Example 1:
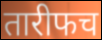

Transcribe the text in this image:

तारीफच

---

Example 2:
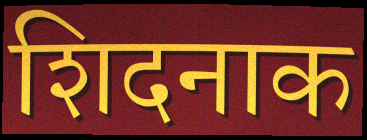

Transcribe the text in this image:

शिदनाक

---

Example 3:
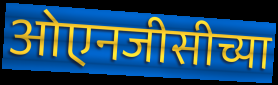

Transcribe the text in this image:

ओएनजीसीच्या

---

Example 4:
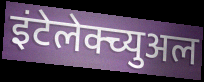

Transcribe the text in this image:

इंटेलेक्च्युअल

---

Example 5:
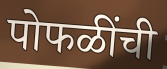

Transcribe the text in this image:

पोफळींची